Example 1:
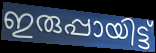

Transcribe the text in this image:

ഇരുപ്പായിട്ട്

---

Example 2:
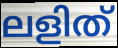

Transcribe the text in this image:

ലളിത്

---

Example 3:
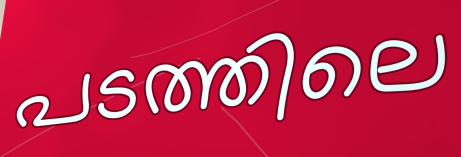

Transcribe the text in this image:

പടത്തിലെ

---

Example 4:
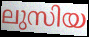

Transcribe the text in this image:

ലുസിയ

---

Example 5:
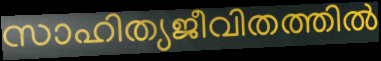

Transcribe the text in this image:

സാഹിത്യജീവിതത്തിൽ